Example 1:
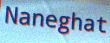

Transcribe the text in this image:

Naneghat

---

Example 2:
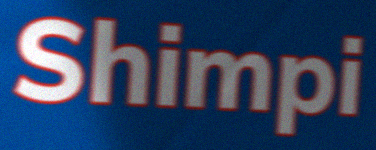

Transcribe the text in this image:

Shimpi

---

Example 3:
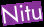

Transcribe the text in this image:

Nitu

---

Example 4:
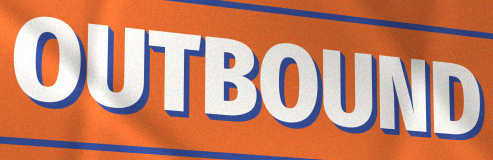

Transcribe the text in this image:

OUTBOUND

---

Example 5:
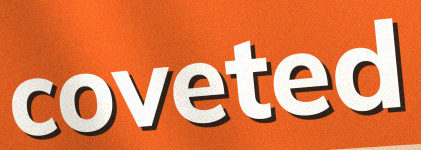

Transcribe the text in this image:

coveted